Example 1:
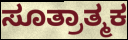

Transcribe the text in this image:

ಸೂತ್ರಾತ್ಮಕ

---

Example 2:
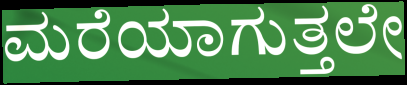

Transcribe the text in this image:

ಮರೆಯಾಗುತ್ತಲೇ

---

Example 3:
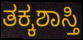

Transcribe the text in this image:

ತಕ್ಕಶಾಸ್ತಿ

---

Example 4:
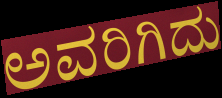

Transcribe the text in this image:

ಅವರಿಗಿದು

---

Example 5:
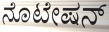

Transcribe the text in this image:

ನೊಟೇಷನ್